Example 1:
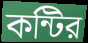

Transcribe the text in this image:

কন্টির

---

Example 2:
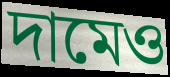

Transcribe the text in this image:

দামেও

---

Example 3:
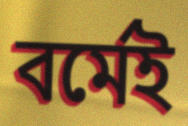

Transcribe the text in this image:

বর্মেই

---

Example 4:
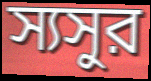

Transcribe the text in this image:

স্যসুর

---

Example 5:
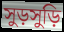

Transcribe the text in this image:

সুড়সুড়ি